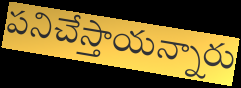
పనిచేస్తాయన్నారు